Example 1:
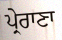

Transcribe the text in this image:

ਪ੍ਰੇਰਾਣਾ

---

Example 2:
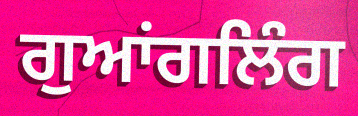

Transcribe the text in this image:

ਗੁਆਂਗਲਿੰਗ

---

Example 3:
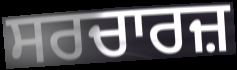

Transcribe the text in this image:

ਸਰਚਾਰਜ਼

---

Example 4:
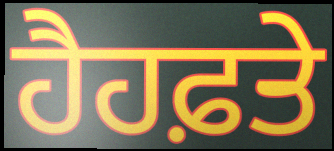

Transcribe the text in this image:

ਹੈਹਫ਼ਤੇ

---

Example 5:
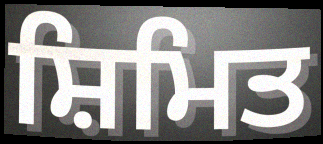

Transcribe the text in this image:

ਸ਼ਿਮਿਤ